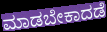
ಮಾಡಬೇಕಾದಡೆ